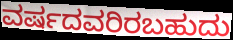
ವರ್ಷದವರಿರಬಹುದು